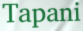
Tapani